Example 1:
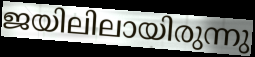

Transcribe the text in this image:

ജയിലിലായിരുന്നു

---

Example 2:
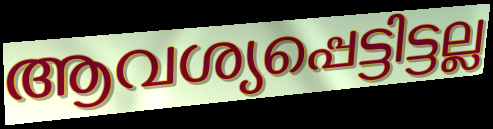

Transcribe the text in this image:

ആവശ്യപ്പെട്ടിട്ടല്ല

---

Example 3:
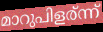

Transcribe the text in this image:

മാറുപിളര്ന്ന്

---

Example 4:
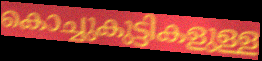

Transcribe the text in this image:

കൊച്ചുകുട്ടികളുള്ള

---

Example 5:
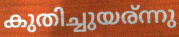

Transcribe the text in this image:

കുതിച്ചുയര്ന്നു